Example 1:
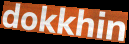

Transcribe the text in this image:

dokkhin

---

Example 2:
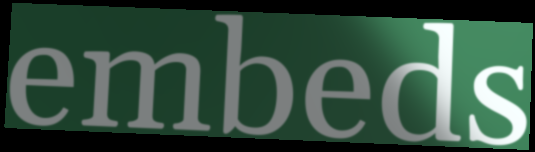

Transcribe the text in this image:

embeds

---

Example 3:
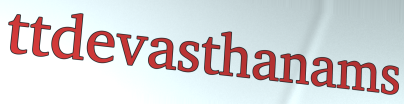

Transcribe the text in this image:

ttdevasthanams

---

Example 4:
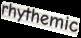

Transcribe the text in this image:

rhythemic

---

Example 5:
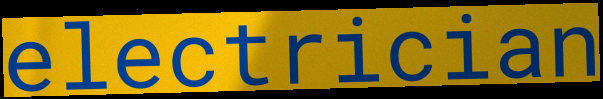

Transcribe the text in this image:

electrician